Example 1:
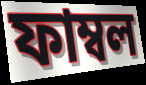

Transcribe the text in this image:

ফাম্বল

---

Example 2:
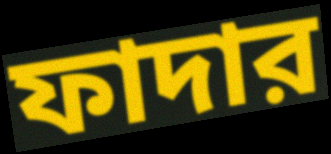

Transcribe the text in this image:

ফাদার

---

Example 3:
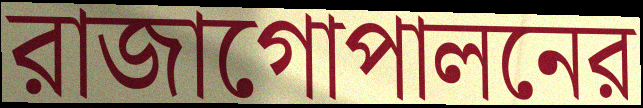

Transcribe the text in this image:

রাজাগোপালনের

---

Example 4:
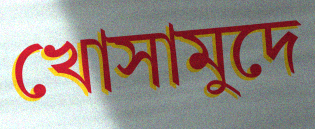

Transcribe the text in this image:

খোসামুদে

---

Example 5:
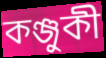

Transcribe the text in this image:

কঞ্জুকী